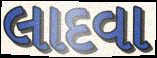
લાદવા